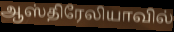
ஆஸ்திரேலியாவில்